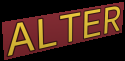
ALTER